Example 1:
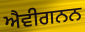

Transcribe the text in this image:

ਐਵੀਗਨਨ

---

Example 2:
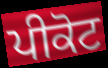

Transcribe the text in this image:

ਪੀਕੋਟ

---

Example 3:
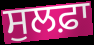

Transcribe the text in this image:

ਸੁਲਫ਼ਾ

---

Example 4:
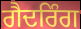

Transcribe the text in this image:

ਗੈਦਰਿੰਗ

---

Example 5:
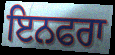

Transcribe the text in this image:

ਇਨਫਰਾ